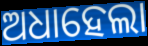
ଅଧାହେଲା